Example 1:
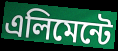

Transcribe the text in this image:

এলিমেন্টে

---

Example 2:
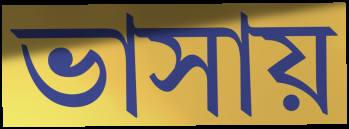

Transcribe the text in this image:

ভাসায়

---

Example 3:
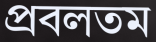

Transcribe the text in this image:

প্রবলতম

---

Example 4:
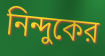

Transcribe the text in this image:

নিন্দুকের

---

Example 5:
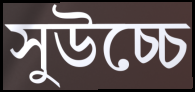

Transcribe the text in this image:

সুউচ্চে